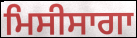
ਮਿਸੀਸਾਗਾ